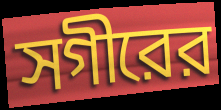
সগীরের